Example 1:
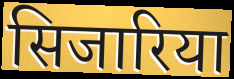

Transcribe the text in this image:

सिजारिया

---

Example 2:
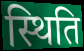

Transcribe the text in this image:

स्‍थिति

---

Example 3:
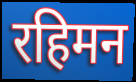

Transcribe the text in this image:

रहिमन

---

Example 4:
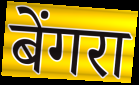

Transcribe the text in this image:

बेंगरा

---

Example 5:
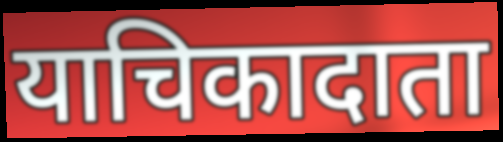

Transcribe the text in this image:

याचिकादाता